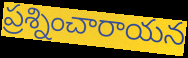
ప్రశ్నించారాయన